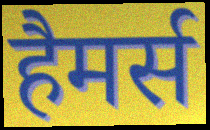
हैमर्स